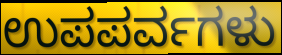
ಉಪಪರ್ವಗಳು